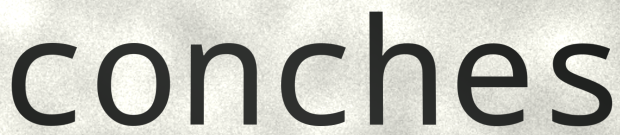
conches